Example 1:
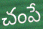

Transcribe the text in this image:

చంపే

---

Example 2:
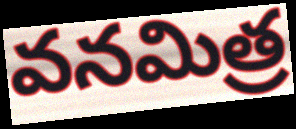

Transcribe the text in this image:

వనమిత్ర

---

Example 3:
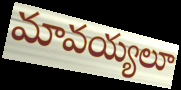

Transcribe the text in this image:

మావయ్యలూ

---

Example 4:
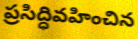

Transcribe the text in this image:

ప్రసిద్ధివహించిన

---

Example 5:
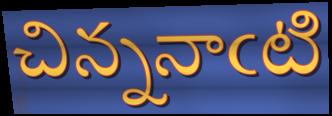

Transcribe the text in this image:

చిన్ననాఁటి